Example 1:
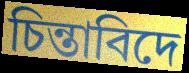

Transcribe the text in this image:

চিন্তাবিদে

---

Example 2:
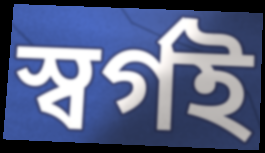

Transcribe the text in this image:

স্বৰ্গই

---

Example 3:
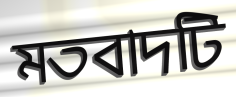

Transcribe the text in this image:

মতবাদটি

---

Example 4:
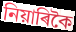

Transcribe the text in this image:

নিয়াৰিকৈ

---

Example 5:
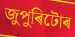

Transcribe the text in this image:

জুপুৰিটোৰ